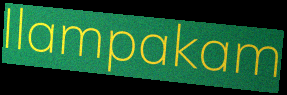
Ilampakam